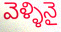
వెళ్ళినై